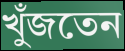
খুঁজতেন